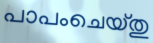
പാപംചെയ്തു